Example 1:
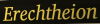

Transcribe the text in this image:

Erechtheion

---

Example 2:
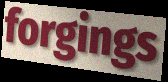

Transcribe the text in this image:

forgings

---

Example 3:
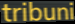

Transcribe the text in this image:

tribuni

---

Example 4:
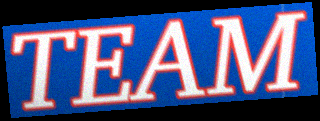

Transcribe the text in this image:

TEAM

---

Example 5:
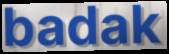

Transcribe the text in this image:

badak